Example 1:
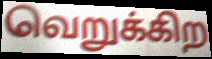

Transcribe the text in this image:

வெறுக்கிற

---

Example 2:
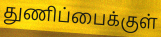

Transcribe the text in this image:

துணிப்பைக்குள்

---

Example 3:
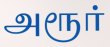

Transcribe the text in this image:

அரூர்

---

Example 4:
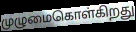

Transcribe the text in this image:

முழுமைகொள்கிறது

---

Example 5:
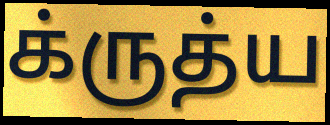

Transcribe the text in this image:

க்ருத்ய